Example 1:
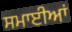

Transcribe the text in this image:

ਸਮਾਈਆਂ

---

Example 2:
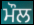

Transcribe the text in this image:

ਮੌਲ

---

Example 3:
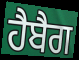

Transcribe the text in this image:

ਹੈਬੈਗ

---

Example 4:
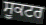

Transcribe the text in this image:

ਸੂਕਟਰ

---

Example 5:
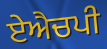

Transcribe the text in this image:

ਏਐਚਪੀ